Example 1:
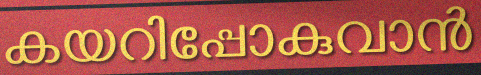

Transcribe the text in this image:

കയറിപ്പോകുവാൻ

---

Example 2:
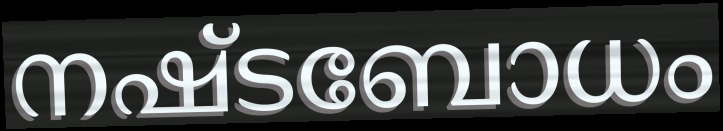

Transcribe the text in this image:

നഷ്ടബോധം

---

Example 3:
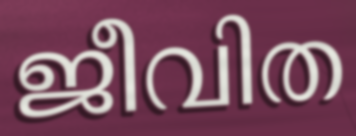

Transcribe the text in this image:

ജീവിത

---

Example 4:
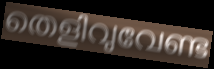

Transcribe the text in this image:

തെളിവുവേണ്ട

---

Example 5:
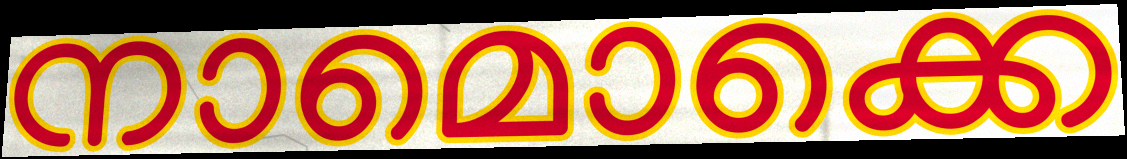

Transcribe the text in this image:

നാമൊക്കെ